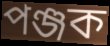
পঞ্জক